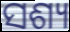
ସଶ୍ୟ